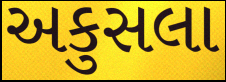
અકુસલા